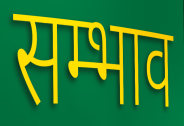
सम्भाव